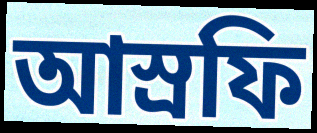
আস্রফি